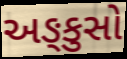
અઙ્કુસો